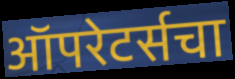
ऑपरेटर्सचा